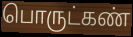
பொருட்கண்